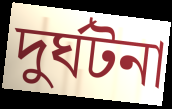
দুর্ঘটনা